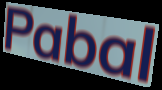
Pabal